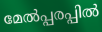
മേൽപ്പരപ്പിൽ